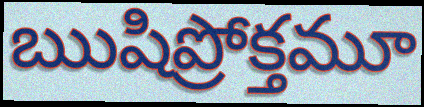
ఋషిప్రోక్తమూ